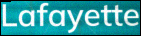
Lafayette